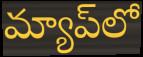
మ్యాప్‌లో